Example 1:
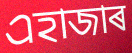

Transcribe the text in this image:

এহাজাৰ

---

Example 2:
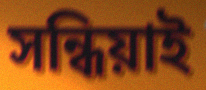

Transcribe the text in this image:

সন্ধিয়াই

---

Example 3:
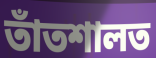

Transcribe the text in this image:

তাঁতশালত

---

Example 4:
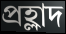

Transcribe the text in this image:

প্ৰহ্লাদ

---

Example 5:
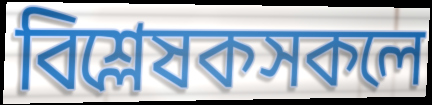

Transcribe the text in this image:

বিশ্লেষকসকলে